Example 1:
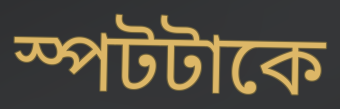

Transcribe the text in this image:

স্পটটাকে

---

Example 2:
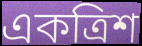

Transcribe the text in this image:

একত্রিশ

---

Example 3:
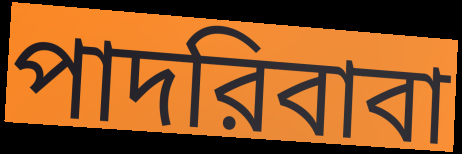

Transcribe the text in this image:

পাদরিবাবা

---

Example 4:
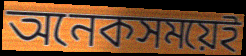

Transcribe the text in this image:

অনেকসময়েই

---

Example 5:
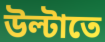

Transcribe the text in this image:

উল্টাতে